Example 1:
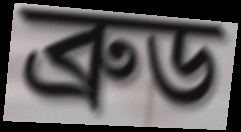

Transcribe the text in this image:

ব্রুড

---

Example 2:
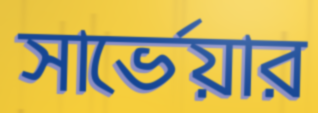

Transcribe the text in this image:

সার্ভেয়ার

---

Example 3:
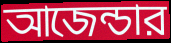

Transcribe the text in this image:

আজেন্ডার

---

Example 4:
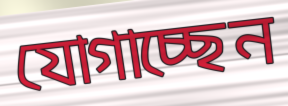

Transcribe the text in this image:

যোগাচ্ছেন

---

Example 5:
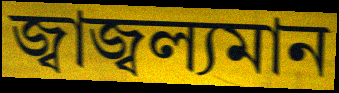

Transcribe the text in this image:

জ্বাজ্বল্যমান